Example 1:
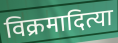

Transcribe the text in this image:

विक्रमादित्या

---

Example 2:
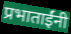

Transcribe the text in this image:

प्रभाताईंनी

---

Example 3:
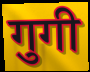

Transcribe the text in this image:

गुगी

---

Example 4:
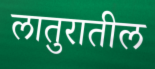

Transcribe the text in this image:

लातुरातील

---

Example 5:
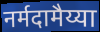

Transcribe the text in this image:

नर्मदामैय्या